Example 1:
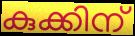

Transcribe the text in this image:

കുക്കിന്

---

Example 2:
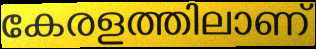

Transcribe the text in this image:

കേരളത്തിലാണ്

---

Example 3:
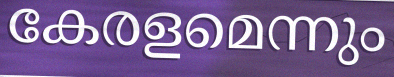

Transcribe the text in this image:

കേരളമെന്നും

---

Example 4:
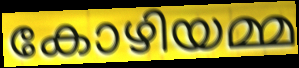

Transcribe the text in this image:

കോഴിയമ്മ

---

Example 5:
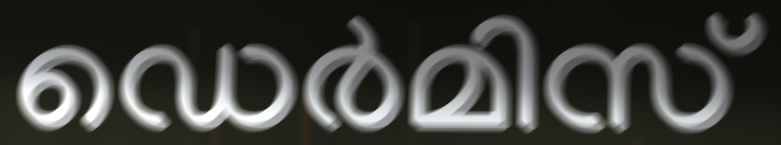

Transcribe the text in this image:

ഡെർമിസ്